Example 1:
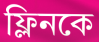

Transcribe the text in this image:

ফ্লিনকে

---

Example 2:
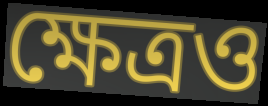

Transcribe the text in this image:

ক্ষেত্রও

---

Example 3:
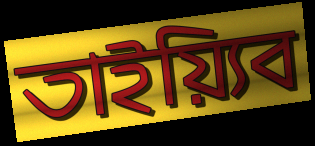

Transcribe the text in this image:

তাইয়্যিব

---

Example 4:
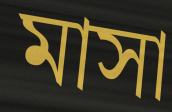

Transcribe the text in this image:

মাসা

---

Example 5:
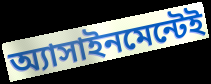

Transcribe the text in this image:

অ্যাসাইনমেন্টেই